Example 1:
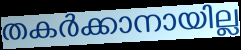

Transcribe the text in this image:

തകർക്കാനായില്ല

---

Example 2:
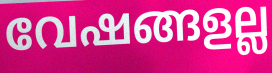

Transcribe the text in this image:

വേഷങ്ങളല്ല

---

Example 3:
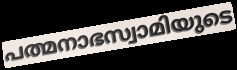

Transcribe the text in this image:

പത്മനാഭസ്വാമിയുടെ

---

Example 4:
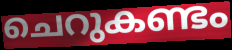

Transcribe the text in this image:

ചെറുകണ്ടം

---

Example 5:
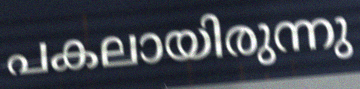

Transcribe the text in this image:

പകലായിരുന്നു